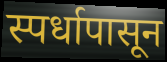
स्पर्धापासून